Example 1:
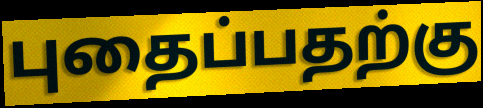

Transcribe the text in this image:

புதைப்பதற்கு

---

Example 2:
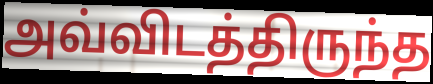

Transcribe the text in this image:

அவ்விடத்திருந்த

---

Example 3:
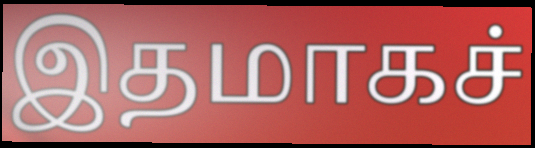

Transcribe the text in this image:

இதமாகச்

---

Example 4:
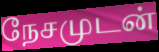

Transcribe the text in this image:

நேசமுடன்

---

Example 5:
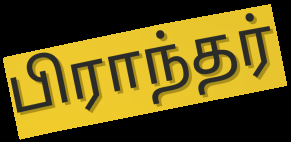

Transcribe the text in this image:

பிராந்தர்